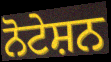
ਨੋਟੇਸ਼ਨ